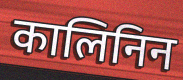
कालिनिन